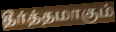
தீர்த்தமாகும்